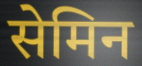
सेमिन